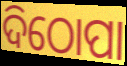
ଦିଠୋପା